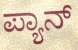
ಪ್ಯಾನ್